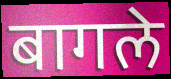
बागले